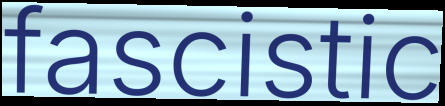
fascistic